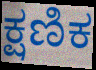
ಕ್ಷಣಿಕ